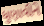
ધુણાવીને